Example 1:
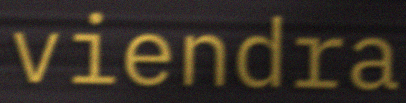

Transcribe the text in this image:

viendra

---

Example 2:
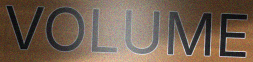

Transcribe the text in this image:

VOLUME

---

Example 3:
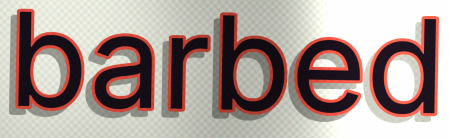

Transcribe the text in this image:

barbed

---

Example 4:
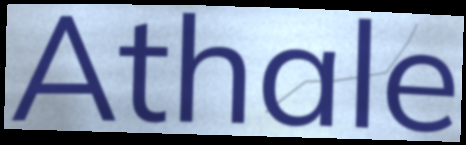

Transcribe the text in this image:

Athale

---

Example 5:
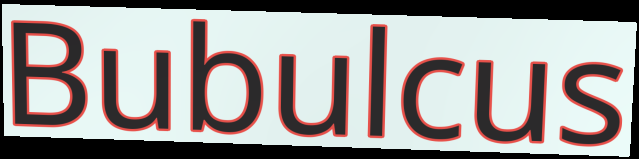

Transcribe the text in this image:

Bubulcus